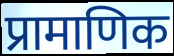
प्रामाणिक